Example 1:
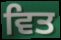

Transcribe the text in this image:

ਵਿਤ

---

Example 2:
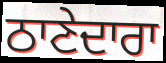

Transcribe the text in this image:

ਠਾਣੇਦਾਰਾ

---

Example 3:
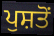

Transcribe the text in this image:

ਪੁਸ਼ਤੋਂ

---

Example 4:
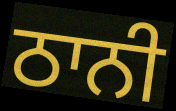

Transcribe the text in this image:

ਠਾਨੀ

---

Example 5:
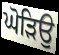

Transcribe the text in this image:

ਘੋੜਿਉ